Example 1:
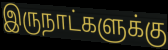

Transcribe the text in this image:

இருநாட்களுக்கு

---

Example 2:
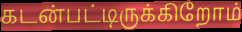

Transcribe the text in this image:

கடன்பட்டிருக்கிறோம்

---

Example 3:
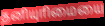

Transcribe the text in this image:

தனியுரிமையை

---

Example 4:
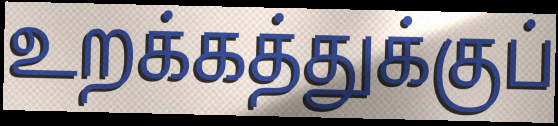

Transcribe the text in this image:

உறக்கத்துக்குப்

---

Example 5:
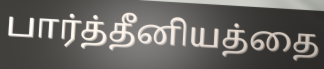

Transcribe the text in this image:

பார்த்தீனியத்தை